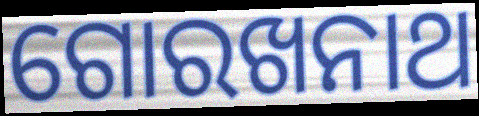
ଗୋରଖନାଥ